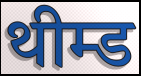
थीम्ड